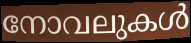
നോവലുകൾ